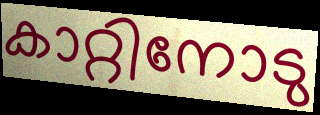
കാറ്റിനോടു